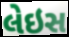
લેઇસ